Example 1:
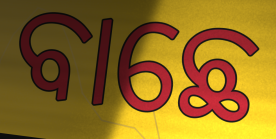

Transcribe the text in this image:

ବାଛେ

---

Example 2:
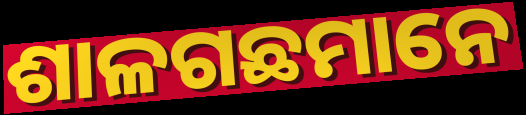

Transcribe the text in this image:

ଶାଳଗଛମାନେ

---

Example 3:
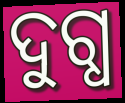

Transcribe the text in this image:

ଦୁଗ୍ଧ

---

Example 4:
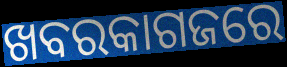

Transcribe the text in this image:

ଖବରକାଗଜରେ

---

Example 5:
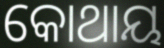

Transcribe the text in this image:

କୋଥାୟ